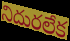
నిదురలేక